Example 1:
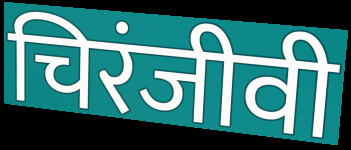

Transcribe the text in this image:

चिरंजीवी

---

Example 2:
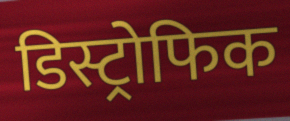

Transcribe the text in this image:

डिस्ट्रोफिक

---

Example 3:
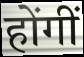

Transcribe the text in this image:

होंगीं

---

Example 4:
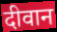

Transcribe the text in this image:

दीवान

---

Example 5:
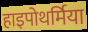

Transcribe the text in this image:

हाइपोथर्मिया